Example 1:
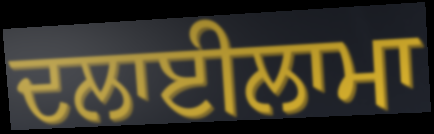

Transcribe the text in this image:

ਦਲਾਈਲਾਮਾ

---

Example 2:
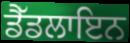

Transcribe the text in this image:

ਡੈੱਡਲਾਇਨ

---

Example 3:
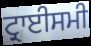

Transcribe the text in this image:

ਟ੍ਰਾਈਸਮੀ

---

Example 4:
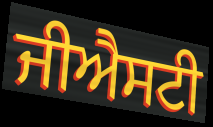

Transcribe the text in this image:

ਜੀਐਸਟੀ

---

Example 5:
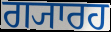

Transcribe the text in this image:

ਗ੍ਯਾਰਹ